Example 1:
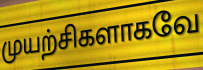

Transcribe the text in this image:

முயற்சிகளாகவே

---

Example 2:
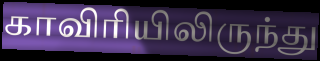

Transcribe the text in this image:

காவிரியிலிருந்து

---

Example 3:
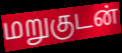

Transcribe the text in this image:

மறுகுடன்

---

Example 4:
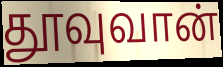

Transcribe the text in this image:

தூவுவான்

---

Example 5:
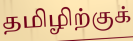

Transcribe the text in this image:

தமிழிற்குக்